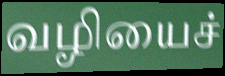
வழியைச்